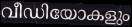
വീഡിയോകളും